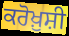
ਕਰੋਖ਼ੁਸ਼ੀ